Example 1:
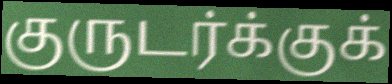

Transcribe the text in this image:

குருடர்க்குக்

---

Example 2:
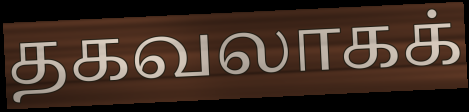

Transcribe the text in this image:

தகவலாகக்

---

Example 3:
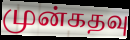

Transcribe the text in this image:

முன்கதவு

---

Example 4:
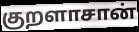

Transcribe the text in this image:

குறளாசான்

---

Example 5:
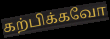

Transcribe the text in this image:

கற்பிக்கவோ